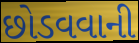
છોડવવાની